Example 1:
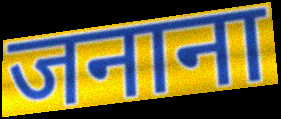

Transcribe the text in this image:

जनाना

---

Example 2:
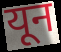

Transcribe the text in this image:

यून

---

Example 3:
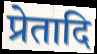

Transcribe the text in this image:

प्रेतादि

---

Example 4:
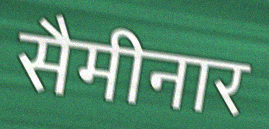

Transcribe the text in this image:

सैमीनार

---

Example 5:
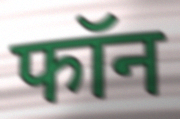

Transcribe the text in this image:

फॉन